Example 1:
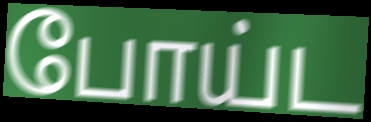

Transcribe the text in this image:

போய்ட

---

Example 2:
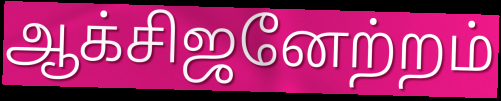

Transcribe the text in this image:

ஆக்சிஜனேற்றம்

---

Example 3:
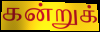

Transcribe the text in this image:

கன்றுக்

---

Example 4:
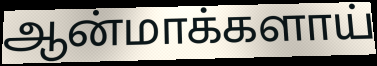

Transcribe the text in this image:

ஆன்மாக்களாய்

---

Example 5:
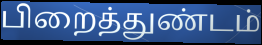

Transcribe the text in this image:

பிறைத்துண்டம்